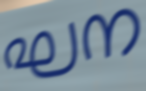
ഘന